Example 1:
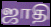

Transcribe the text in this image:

ஜாதி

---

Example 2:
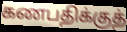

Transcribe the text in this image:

கணபதிக்குத்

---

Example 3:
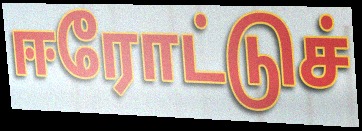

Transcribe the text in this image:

ஈரோட்டுச்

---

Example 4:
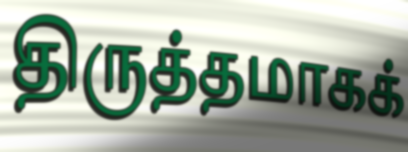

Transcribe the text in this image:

திருத்தமாகக்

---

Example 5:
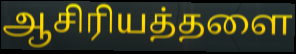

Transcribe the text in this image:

ஆசிரியத்தளை